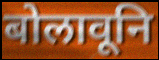
बोलावूनि